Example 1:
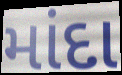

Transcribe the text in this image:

માંદા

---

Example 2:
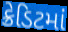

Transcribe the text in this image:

ક્રેડિટમાં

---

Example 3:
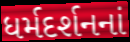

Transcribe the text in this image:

ધર્મદર્શનનાં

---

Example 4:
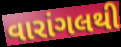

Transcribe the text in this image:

વારાંગલથી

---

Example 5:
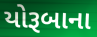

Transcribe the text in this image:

યોરૂબાના